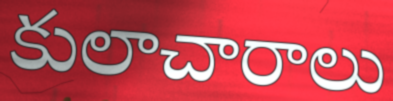
కులాచారాలు